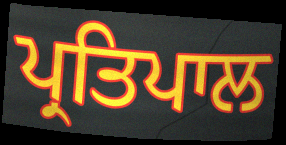
ਪ੍ਰਤਿਪਾਲ